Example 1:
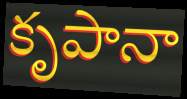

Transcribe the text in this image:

కృపానా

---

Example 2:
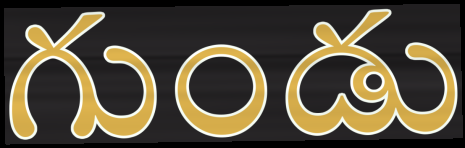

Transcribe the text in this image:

గుండు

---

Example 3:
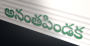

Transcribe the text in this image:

అనంతపిండక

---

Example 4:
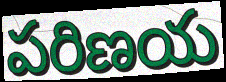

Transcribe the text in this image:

పరిణయ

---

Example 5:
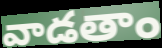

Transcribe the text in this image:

వాడతాం